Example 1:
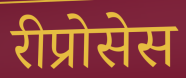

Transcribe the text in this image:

रीप्रोसेस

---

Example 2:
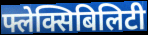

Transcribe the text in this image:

फ्लेक्सिबिलिटी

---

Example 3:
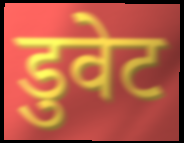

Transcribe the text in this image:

डुवेट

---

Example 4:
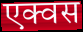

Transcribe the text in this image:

एक्वस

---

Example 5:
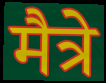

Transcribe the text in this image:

मैत्रे